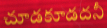
చూడకూడదనీ